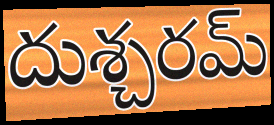
దుశ్చరమ్